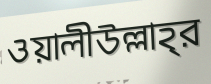
ওয়ালীউল্লাহ্‌র